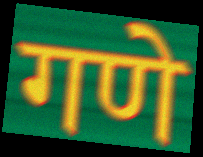
गणे